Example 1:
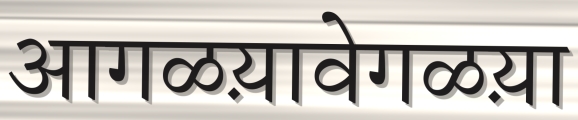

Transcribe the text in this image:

आगळय़ावेगळय़ा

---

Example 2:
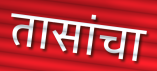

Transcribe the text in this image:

तासांचा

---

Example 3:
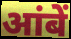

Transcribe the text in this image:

आंबें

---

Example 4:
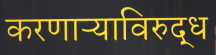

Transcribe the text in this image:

करणाऱ्याविरुद्ध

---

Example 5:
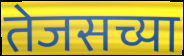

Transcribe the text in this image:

तेजसच्या